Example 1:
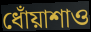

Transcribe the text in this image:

ধোঁয়াশাও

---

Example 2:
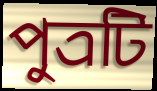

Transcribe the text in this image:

পুত্রটি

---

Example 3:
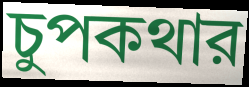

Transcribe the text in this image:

চুপকথার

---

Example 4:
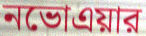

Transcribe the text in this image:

নভোএয়ার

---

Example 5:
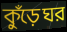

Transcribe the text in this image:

কুঁড়েঘর